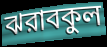
ঝরাবকুল